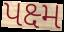
પક્ષ્મ